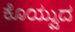
ಕೊಯ್ವುದ